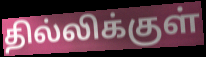
தில்லிக்குள்